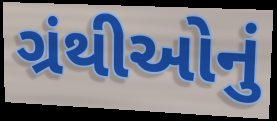
ગ્રંથીઓનું